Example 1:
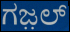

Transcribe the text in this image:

ಗಜ಼ಲ್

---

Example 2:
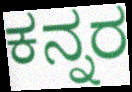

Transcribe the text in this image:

ಕನ್ನರ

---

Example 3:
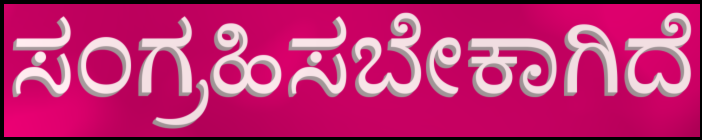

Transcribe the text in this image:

ಸಂಗ್ರಹಿಸಬೇಕಾಗಿದೆ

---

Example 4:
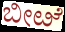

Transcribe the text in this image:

ಬೀೞೆ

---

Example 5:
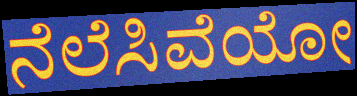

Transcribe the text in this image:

ನೆಲೆಸಿವೆಯೋ